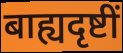
बाह्यदृष्टीं